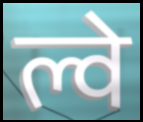
ल्वे